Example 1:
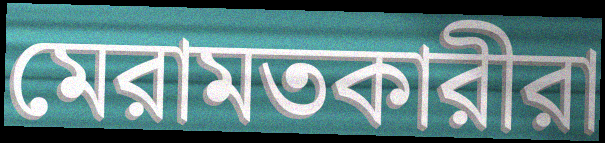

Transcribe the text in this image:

মেরামতকারীরা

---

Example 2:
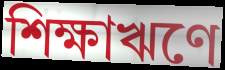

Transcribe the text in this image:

শিক্ষাঋণে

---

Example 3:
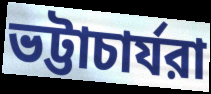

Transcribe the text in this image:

ভট্টাচার্যরা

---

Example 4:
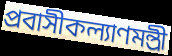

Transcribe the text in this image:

প্রবাসীকল্যাণমন্ত্রী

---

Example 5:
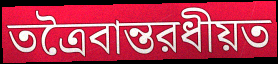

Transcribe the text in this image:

তত্রৈবান্তরধীয়ত